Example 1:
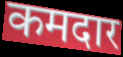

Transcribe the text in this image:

कमदार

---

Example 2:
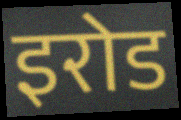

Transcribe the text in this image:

इरोड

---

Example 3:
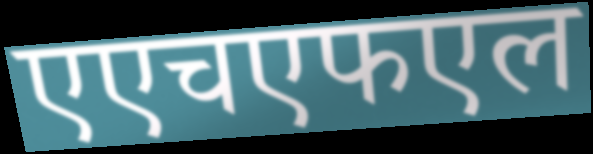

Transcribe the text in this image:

एएचएफएल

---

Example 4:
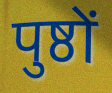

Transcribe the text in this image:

पुष्ठों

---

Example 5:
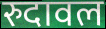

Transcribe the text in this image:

रुदावल